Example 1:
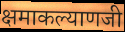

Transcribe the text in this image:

क्षमाकल्याणजी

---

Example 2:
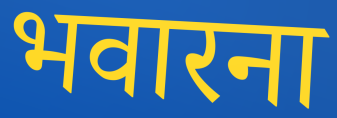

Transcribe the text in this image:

भवारना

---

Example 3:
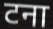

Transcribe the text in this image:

टना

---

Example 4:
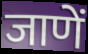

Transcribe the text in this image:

जाणें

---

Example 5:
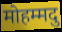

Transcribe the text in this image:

मोहम्मदु